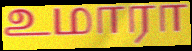
உமாரா